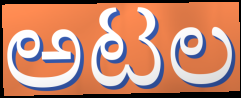
ಅಟಲ